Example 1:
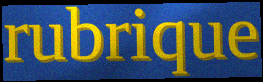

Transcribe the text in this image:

rubrique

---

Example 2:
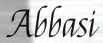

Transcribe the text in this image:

Abbasi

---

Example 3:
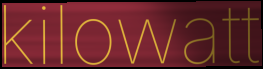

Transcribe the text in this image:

kilowatt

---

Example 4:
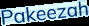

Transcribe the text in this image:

Pakeezah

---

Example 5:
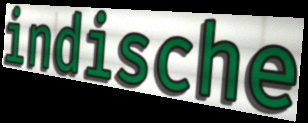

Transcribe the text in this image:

indische